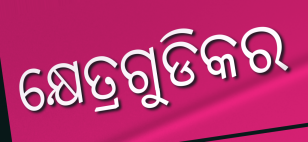
କ୍ଷେତ୍ରଗୁଡିକର